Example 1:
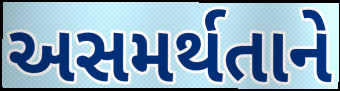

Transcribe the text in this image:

અસમર્થતાને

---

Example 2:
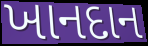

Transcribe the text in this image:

ખાનદાન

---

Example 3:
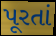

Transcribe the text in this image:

પૂરતાં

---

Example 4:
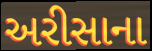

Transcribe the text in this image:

અરીસાના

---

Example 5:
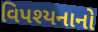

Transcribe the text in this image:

વિપશ્યનાનો